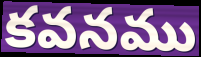
కవనము